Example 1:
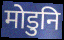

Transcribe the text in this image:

मोडुनि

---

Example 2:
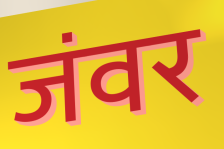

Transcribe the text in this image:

जंवर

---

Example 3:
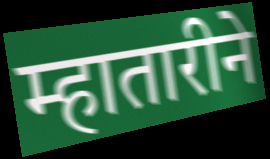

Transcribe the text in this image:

म्हातारीने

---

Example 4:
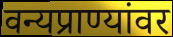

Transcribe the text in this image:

वन्यप्राण्यांवर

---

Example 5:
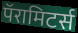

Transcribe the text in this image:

पॅरामिटर्स